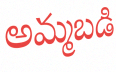
అమ్మబడి